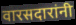
वारसदारांनी